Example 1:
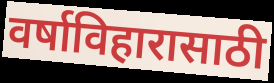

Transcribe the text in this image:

वर्षाविहारासाठी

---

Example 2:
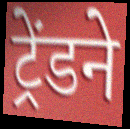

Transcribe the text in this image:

ट्रेंडने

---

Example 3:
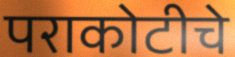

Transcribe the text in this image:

पराकोटीचे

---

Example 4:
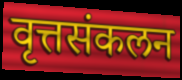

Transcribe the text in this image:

वृत्तसंकलन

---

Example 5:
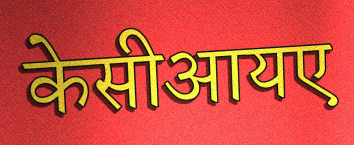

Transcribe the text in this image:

केसीआयए